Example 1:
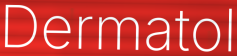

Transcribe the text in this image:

Dermatol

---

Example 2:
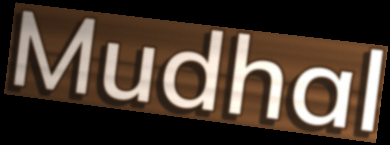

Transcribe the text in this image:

Mudhal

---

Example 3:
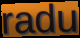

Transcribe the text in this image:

radu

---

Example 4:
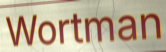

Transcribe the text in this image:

Wortman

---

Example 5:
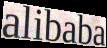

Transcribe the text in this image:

alibaba